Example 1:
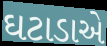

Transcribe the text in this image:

ઘટાડાએ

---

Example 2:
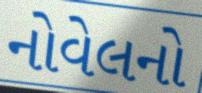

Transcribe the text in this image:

નોવેલનો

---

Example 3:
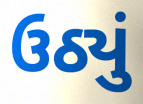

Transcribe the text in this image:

ઉઠ્યું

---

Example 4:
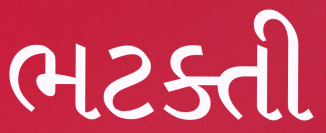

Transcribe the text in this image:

ભટક્તી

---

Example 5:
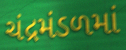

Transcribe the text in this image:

ચંદ્રમંડળમાં